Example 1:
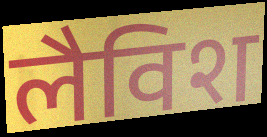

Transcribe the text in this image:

लैविश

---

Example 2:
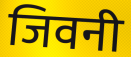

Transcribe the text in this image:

जिवनी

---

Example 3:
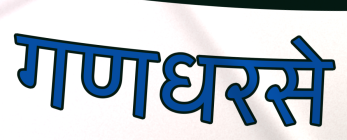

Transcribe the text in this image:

गणधरसे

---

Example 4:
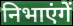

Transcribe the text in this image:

निभाएंगें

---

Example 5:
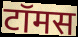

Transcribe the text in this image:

टॉमस